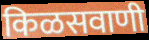
किळसवाणी